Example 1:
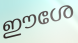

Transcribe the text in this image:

ഈശേ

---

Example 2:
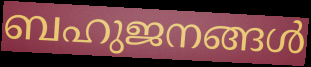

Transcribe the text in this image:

ബഹുജനങ്ങൾ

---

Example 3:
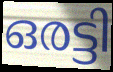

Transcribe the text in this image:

ഒരട്ടി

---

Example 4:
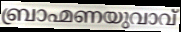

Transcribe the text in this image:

ബ്രാഹ്മണയുവാവ്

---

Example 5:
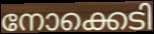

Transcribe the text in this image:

നോക്കെടി